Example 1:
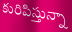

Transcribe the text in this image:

కురిపిస్తున్నా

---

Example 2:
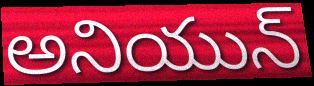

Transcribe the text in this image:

అనియున్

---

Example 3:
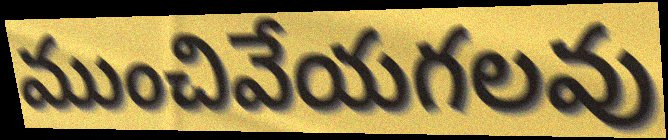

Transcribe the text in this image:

ముంచివేయగలవు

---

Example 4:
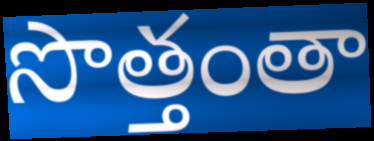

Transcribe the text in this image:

సొత్తంతా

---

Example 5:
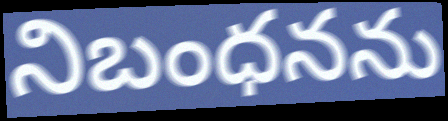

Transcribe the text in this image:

నిబంధనను